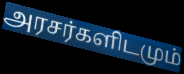
அரசர்களிடமும்